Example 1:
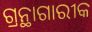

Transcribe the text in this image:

ଗ୍ରନ୍ଥାଗାରୀକ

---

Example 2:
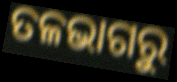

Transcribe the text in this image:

ତଳଭାଗରୁ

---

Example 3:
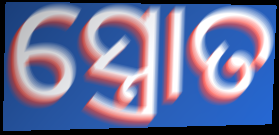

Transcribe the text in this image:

ସ୍ତ୍ରୋତ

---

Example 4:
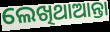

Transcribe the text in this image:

ଲେଖିଥାଆନ୍ତା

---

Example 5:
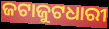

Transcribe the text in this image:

ଜଟାଜୁଟଧାରୀ